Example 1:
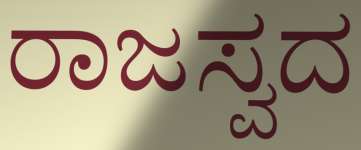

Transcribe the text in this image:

ರಾಜಸ್ವದ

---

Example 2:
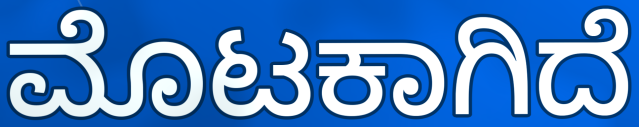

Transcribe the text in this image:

ಮೊಟಕಾಗಿದೆ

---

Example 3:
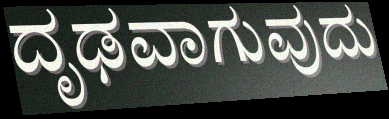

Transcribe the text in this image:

ದೃಢವಾಗುವುದು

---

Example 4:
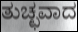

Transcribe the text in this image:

ತುಚ್ಛವಾದ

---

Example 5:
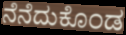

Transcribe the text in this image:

ನೆನೆದುಕೊಂಡ